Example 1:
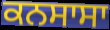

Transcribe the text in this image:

ਕਨਸਾਸਾ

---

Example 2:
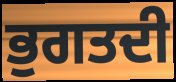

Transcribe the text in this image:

ਭੁਗਤਦੀ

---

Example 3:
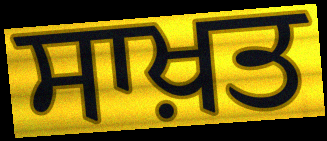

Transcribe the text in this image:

ਸਾਖ਼ਤ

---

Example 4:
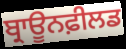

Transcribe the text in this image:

ਬ੍ਰਾਊਨਫ਼ੀਲਡ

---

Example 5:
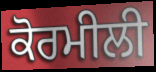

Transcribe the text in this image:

ਕੋਰਮੀਲੀ